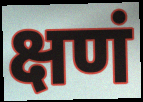
क्षणं